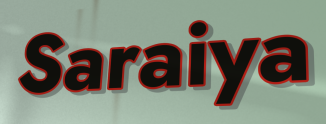
Saraiya